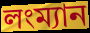
লংম্যান